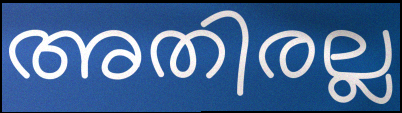
അതിരല്ല